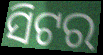
ସିଟର